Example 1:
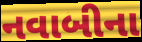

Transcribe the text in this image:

નવાબીના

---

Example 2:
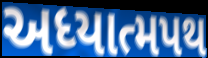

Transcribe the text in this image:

અધ્યાત્મપથ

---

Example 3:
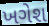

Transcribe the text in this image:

ખગેશ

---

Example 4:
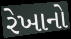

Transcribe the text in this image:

રેખાનો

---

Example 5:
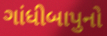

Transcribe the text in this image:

ગાંધીબાપુનો